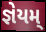
જ્ઞેયમ્